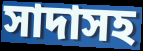
সাদাসহ